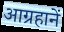
आग्रहानें